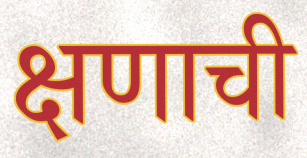
क्षणाची